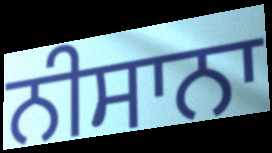
ਨੀਸਾਨਾ